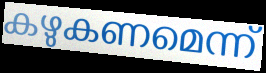
കഴുകണമെന്ന്